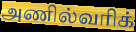
அணில்வரிக்